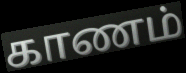
காணம்